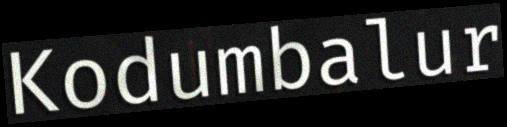
Kodumbalur